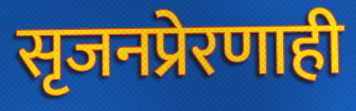
सृजनप्रेरणाही